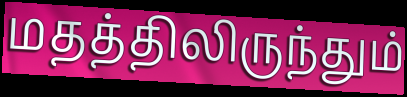
மதத்திலிருந்தும்